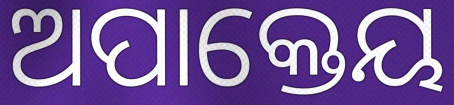
ଅପାକ୍ତେୟ